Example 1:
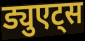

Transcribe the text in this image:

ड्युएट्स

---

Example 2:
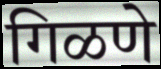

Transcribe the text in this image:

गिळणे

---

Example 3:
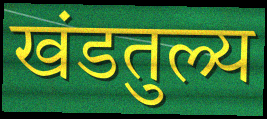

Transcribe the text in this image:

खंडतुल्य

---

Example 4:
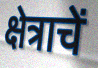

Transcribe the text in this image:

क्षेत्राचें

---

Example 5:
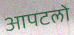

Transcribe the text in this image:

आपटलो